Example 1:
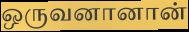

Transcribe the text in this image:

ஒருவனானான்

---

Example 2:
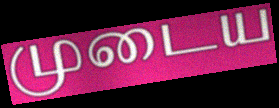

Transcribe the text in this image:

முடைய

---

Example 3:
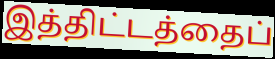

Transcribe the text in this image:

இத்திட்டத்தைப்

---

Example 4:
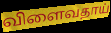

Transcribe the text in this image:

விளைவதாய்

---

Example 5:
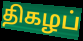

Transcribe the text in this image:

திகழப்